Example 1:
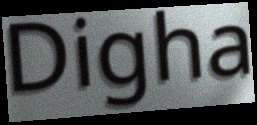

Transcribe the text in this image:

Digha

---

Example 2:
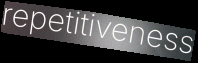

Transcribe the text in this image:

repetitiveness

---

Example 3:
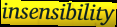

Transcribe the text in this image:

insensibility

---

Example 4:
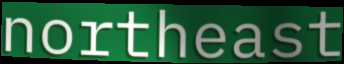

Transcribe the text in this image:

northeast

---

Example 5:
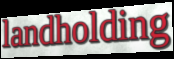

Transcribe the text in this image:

landholding